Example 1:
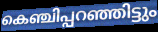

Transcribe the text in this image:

കെഞ്ചിപ്പറഞ്ഞിട്ടും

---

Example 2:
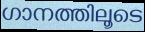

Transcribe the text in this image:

ഗാനത്തിലൂടെ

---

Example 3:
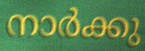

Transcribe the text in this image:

നാർക്കു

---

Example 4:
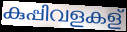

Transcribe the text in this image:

കുപ്പിവളകള്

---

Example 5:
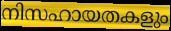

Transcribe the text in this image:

നിസഹായതകളും